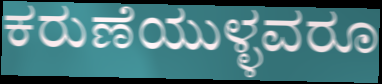
ಕರುಣೆಯುಳ್ಳವರೂ